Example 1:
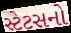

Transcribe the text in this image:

સ્ટેટસનો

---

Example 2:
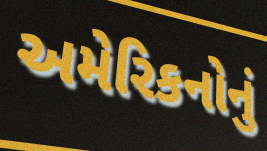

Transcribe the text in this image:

અમેરિકનોનું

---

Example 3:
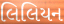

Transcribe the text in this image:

લિલિયન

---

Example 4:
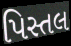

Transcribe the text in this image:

પિસ્તલ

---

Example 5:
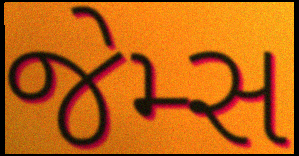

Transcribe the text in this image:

જેમ્સ